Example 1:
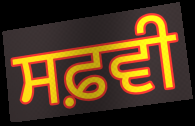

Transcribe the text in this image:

ਸਫ਼ਵੀ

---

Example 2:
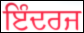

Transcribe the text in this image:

ਇੰਦਰਜ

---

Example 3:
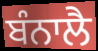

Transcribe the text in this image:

ਬੰਨਾਲੈ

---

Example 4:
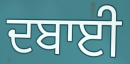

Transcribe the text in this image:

ਦਬਾਈ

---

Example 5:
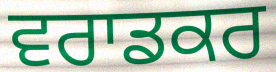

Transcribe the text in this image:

ਵਰਾਡਕਰ